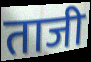
ताजी